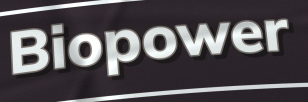
Biopower